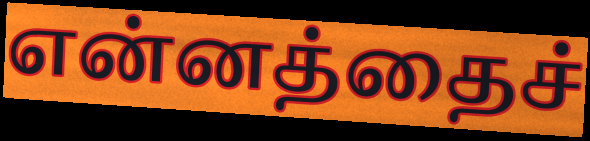
என்னத்தைச்